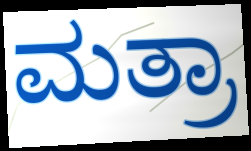
ಮತ್ರಾ